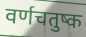
वर्णचतुष्क